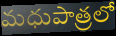
మధుపాత్రలో